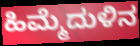
ಹಿಮ್ಮೆದುಳಿನ